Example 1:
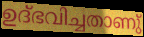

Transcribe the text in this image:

ഉദ്ഭവിച്ചതാണു്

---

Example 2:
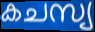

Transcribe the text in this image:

കചസ്യ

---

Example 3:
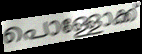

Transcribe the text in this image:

പൊള്ളോക്ക്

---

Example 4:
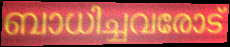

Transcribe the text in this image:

ബാധിച്ചവരോട്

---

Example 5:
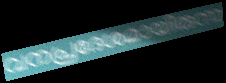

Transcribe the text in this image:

വനപ്രദേശമായിരുന്ന